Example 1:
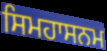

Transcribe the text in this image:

ਸਿਮਹਾਸਨਮ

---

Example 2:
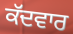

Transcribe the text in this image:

ਕੱਦਵਾਰ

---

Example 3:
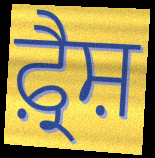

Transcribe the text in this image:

ਫ਼੍ਰੈਸ਼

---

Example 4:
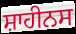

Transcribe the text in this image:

ਸ਼ਾਹੀਨਸ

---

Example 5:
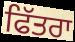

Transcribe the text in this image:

ਫਿੱਤਰਾ